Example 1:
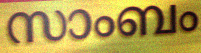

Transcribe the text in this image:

സാംബം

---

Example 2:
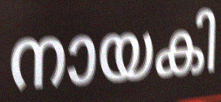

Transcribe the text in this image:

നായകി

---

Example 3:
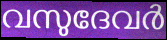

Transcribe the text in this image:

വസുദേവർ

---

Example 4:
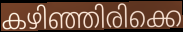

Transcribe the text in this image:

കഴിഞ്ഞിരിക്കെ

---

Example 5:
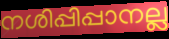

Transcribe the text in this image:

നശിപ്പിപ്പാനല്ല